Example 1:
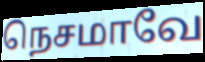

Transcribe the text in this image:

நெசமாவே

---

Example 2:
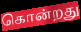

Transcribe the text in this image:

கொன்றது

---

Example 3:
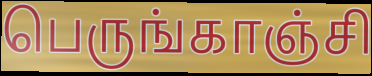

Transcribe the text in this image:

பெருங்காஞ்சி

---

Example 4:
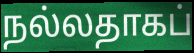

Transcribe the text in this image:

நல்லதாகப்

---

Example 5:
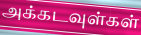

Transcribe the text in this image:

அக்கடவுள்கள்